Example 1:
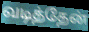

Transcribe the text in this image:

வடித்தேன்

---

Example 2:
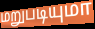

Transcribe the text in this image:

மறுபடியுமா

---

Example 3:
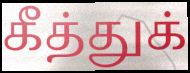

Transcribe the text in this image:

கீத்துக்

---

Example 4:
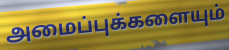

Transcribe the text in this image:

அமைப்புக்களையும்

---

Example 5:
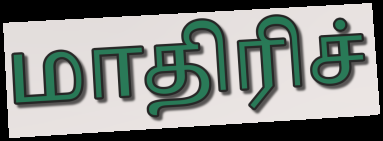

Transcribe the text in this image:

மாதிரிச்